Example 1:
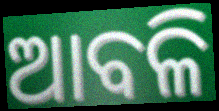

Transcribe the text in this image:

ଆବଳି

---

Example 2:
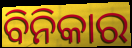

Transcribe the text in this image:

ବିନିକାର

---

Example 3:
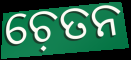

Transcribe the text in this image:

ଚ଼େତନ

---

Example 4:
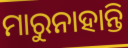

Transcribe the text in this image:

ମାରୁନାହାନ୍ତି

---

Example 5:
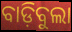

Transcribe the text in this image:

ବାଡ଼ିବୁଲା